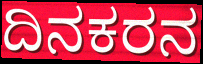
ದಿನಕರನ